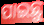
ପାଇଛୁ